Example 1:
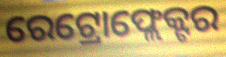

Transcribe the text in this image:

ରେଟ୍ରୋଫ୍ଲେକ୍ଟର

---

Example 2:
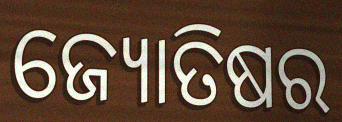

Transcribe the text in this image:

ଜ୍ୟୋତିଷର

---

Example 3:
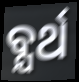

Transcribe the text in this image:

ବ୍ଯର୍ଥ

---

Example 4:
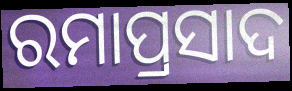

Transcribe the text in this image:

ରମାପ୍ରସାଦ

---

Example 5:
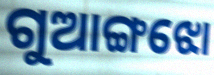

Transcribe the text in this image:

ଗୁଆଙ୍ଗଝୋ